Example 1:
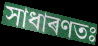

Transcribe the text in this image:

সাধাৰণতঃ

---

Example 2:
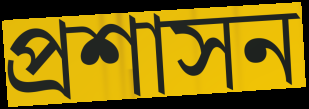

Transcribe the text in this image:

প্ৰশাসন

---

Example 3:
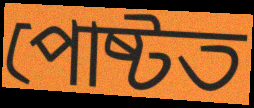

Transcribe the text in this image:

পোষ্টত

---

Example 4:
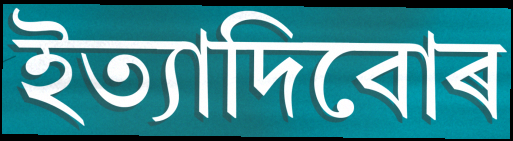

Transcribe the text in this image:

ইত্যাদিবোৰ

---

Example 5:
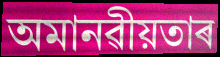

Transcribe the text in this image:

অমানৱীয়তাৰ